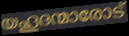
യഹൂദന്മാരോട്